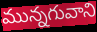
మున్నగువాని